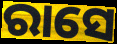
ରାସେ